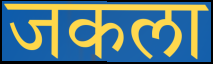
जकला